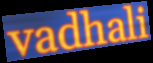
vadhali